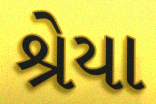
શ્રેયા